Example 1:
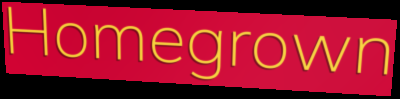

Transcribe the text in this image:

Homegrown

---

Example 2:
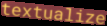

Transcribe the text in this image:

textualize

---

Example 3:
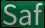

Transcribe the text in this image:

Saf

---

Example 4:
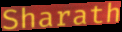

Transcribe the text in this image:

Sharath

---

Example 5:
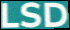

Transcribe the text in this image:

LSD